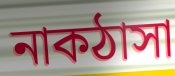
নাকঠাসা